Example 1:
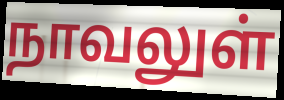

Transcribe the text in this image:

நாவலுள்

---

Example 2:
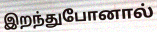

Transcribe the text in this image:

இறந்துபோனால்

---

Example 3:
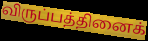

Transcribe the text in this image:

விருப்பத்தினைக்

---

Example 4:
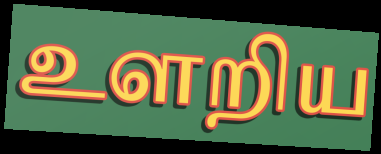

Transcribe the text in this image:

உளறிய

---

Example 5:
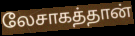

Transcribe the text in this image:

லேசாகத்தான்